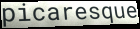
picaresque